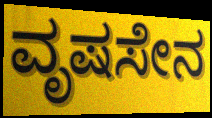
ವೃಷಸೇನ